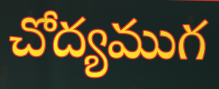
చోద్యముగ